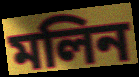
মলিন